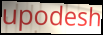
upodesh